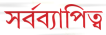
সর্বব্যাপিত্ব